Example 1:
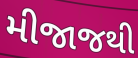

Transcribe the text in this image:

મીજાજથી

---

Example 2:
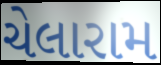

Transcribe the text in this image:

ચેલારામ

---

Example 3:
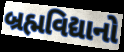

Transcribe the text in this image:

બ્રહ્મવિદ્યાનો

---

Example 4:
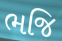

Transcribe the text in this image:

ભજિ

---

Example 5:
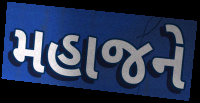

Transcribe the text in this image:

મહાજને